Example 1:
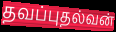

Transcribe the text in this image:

தவப்புதல்வன்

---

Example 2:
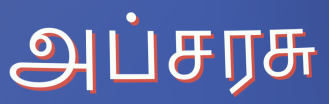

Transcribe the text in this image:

அப்சரசு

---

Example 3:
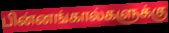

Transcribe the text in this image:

பின்னங்கால்களுக்கு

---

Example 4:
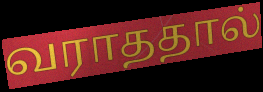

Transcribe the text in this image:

வராததால்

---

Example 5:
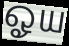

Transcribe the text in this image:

ஓய